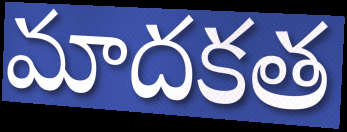
మాదకత